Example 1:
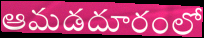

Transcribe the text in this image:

ఆమడదూరంలో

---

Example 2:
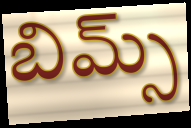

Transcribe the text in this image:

బిమ్స్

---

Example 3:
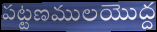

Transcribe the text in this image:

పట్టణములయొద్ద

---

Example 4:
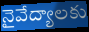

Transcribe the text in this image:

నైవేద్యాలకు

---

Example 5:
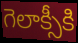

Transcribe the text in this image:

గెలాక్సీకి